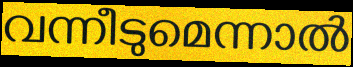
വന്നീടുമെന്നാൽ